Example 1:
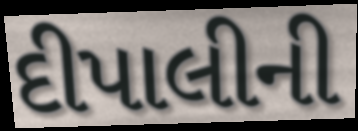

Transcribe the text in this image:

દીપાલીની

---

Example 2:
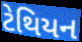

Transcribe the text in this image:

ટેથિયન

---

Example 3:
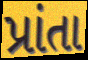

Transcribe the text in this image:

પ્રાંતા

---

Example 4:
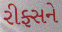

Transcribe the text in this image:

રીફ્સને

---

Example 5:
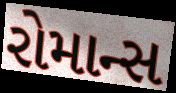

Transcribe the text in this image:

રોમાન્સ